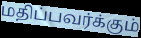
மதிப்பவர்க்கும்